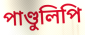
পাণ্ডুলিপি